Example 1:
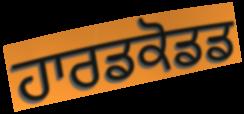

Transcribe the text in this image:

ਹਾਰਡਕੋਡਡ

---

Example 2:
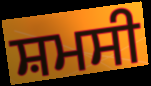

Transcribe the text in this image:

ਸ਼ਮਸੀ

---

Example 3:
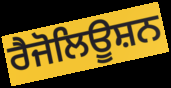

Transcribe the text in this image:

ਰੈਜੋਲਿਊਸ਼ਨ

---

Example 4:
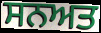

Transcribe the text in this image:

ਸਨਅਤ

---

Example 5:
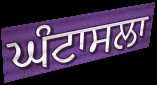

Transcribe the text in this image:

ਘੰਟਾਸਲਾ